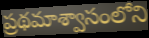
ప్రథమాశ్వాసంలోని